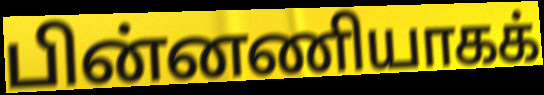
பின்னணியாகக்